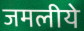
जमलीये